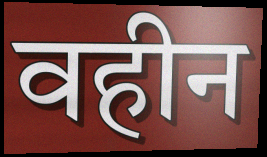
वहीन